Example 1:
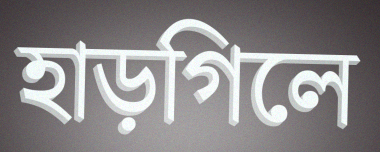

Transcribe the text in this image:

হাড়গিলে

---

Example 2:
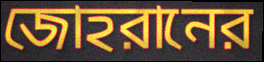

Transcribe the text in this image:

জোহরানের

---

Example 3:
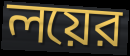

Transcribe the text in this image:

লয়ের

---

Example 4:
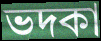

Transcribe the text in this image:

ভদকা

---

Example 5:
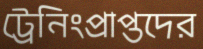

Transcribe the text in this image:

ট্রেনিংপ্রাপ্তদের